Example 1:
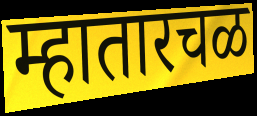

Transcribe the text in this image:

म्हातारचळ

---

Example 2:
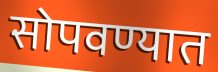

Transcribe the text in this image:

सोपवण्यात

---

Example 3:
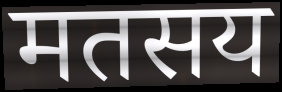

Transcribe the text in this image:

मतसय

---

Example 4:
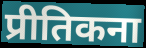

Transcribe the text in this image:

प्रीतिकना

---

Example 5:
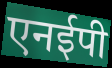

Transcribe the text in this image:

एनईपी